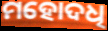
ମହୋଦଧି